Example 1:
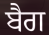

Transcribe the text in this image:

ਬੈਗ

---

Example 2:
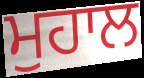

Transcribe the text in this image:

ਮੁਹਾਲ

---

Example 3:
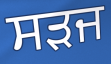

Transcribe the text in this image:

ਸੜਜ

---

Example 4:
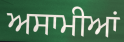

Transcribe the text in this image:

ਅਸਾਮੀਆਂ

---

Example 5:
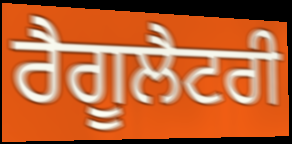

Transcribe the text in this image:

ਰੈਗੂਲੈਟਰੀ